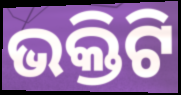
ଭକ୍ତିଟି